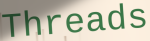
Threads